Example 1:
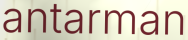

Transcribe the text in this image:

antarman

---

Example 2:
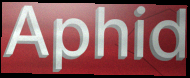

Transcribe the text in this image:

Aphid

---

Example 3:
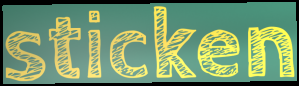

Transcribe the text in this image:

sticken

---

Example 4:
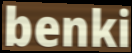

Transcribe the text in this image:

benki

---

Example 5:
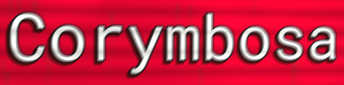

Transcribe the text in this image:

Corymbosa